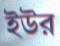
ইউর